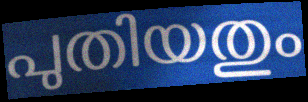
പുതിയതും